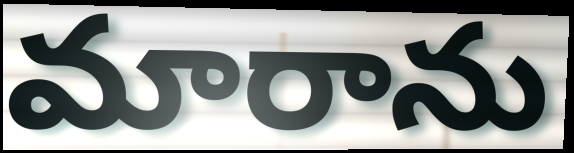
మారాను